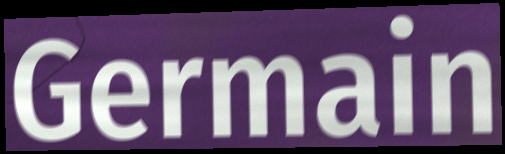
Germain